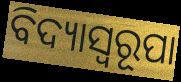
ବିଦ୍ୟାସ୍ୱରୂପା